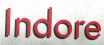
Indore